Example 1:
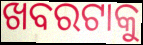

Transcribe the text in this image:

ଖବରଟାକୁ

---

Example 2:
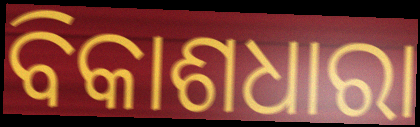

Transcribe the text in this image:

ବିକାଶଧାରା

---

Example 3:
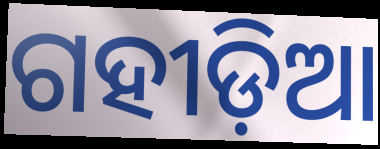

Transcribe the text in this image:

ଗହୀଡ଼ିଆ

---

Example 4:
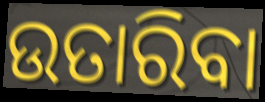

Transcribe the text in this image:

ଉତାରିବା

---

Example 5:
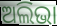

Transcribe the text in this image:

ଅଲିଭା